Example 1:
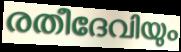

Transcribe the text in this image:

രതീദേവിയും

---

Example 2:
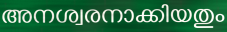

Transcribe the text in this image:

അനശ്വരനാക്കിയതും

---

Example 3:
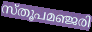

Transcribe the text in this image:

സ്തൂപമഞ്ജരി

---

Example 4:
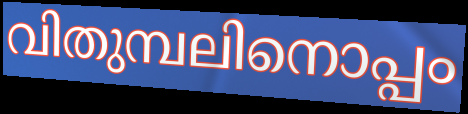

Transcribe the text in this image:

വിതുമ്പലിനൊപ്പം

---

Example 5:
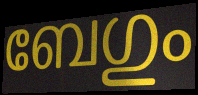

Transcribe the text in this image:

ബേഗും